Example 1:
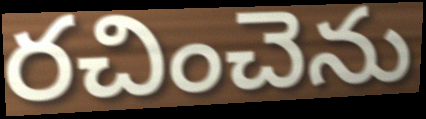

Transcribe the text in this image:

రచించెను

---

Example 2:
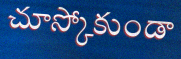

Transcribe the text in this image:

చూస్కోకుండా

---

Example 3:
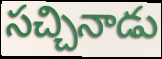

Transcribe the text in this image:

సచ్చినాడు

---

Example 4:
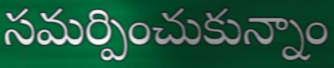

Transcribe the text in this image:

సమర్పించుకున్నాం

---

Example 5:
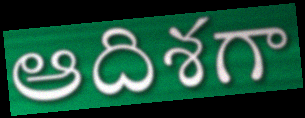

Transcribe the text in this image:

ఆదిశగా